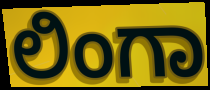
ಲಿಂಗಾ